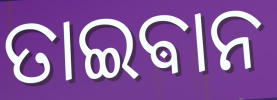
ତାଇଵାନ